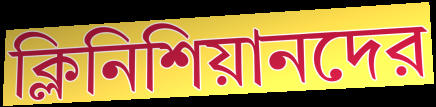
ক্লিনিশিয়ানদের